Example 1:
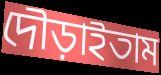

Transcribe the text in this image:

দৌড়াইতাম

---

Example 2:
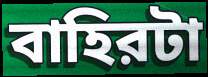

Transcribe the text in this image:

বাহিরটা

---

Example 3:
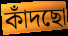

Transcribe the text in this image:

কাঁদছো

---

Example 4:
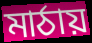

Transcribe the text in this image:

মাঠায়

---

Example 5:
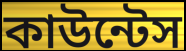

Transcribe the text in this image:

কাউন্টেস